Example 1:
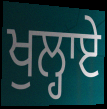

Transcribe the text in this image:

ਖੁਲ੍ਹਾਏ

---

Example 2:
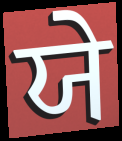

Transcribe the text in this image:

ਯੇ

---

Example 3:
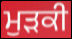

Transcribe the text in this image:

ਮੁੜਕੀ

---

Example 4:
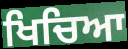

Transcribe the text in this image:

ਖਿਚਿਆ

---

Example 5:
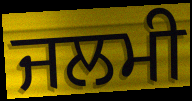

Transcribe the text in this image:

ਜਲਮੀ